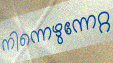
നിന്നെഴുന്നേറ്റ